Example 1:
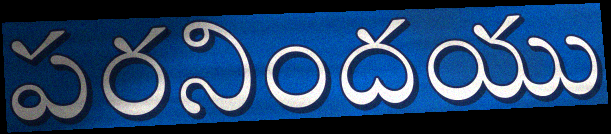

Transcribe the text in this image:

పరనిందయు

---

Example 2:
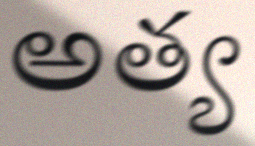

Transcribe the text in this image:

అత్య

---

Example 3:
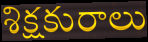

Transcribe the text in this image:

శిక్షకురాలు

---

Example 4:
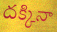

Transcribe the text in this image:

దక్కినా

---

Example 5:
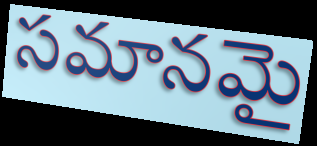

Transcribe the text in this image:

సమానమై